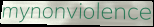
mynonviolence